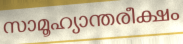
സാമൂഹ്യാന്തരീക്ഷം